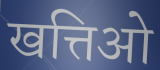
खत्तिओ